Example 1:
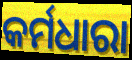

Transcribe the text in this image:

କର୍ମଧାରା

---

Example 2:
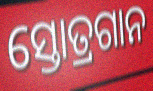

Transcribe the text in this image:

ସ୍ତୋତ୍ରଗାନ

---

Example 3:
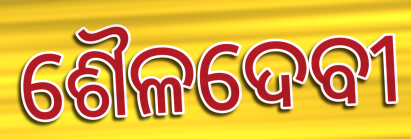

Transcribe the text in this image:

ଶୈଳଦେବୀ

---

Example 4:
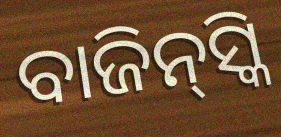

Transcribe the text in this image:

ବାଜିନ୍‌ସ୍କି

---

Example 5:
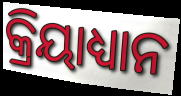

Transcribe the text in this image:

କ୍ରିୟାଧ୍ୟାନ